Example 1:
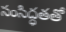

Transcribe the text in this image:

సంసిద్ధతతో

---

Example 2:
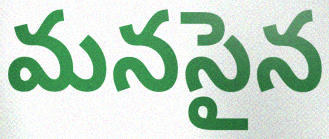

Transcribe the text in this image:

మనసైన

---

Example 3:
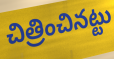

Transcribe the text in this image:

చిత్రించినట్టు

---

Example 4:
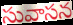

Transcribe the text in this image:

సువాసన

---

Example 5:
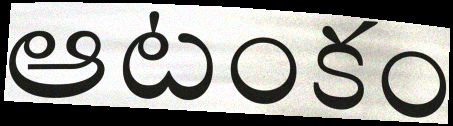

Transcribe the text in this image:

ఆటంకం